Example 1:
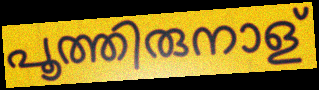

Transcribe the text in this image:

പൂത്തിരുനാള്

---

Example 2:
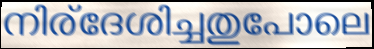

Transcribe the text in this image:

നിര്ദേശിച്ചതുപോലെ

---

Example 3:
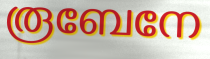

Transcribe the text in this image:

രൂബേനേ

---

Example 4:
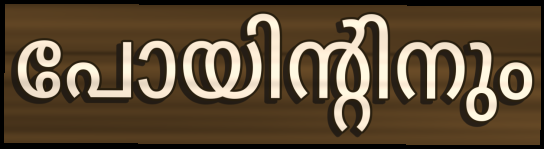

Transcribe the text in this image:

പോയിന്റിനും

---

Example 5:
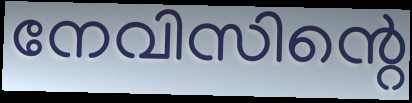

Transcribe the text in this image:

നേവിസിന്റെ